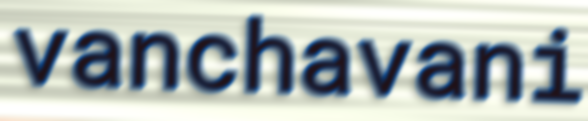
vanchavani